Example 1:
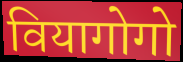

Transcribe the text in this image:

वियागोगो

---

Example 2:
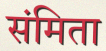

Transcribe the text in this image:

संमिता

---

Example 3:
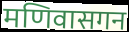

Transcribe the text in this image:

मणिवासगन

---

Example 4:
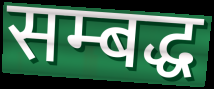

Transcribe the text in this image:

सम्बद्ध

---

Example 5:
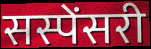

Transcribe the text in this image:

सस्पेंसरी